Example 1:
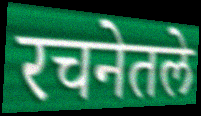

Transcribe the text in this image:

रचनेतले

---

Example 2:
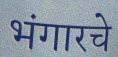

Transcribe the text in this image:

भंगारचे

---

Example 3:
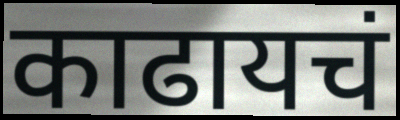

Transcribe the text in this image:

काढायचं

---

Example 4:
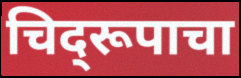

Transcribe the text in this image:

चिद्‌रूपाचा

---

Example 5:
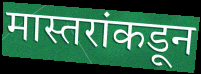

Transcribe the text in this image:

मास्तरांकडून